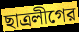
ছাত্রলীগের